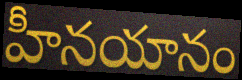
హీనయానం